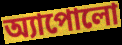
অ্যাপোলো